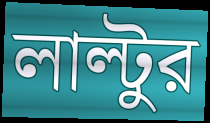
লাল্টুর